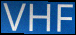
VHF